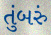
તુંબરું